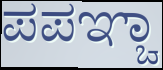
ಪಪಞ್ಚಾ